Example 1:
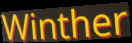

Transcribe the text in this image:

Winther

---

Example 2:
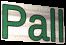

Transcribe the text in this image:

Pall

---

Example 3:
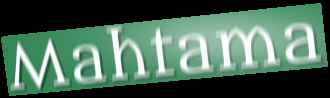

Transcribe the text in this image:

Mahtama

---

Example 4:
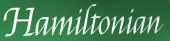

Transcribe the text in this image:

Hamiltonian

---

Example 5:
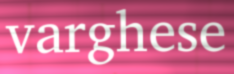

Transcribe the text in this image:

varghese